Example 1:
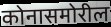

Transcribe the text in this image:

कोनासमोरील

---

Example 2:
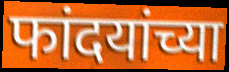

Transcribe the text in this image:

फांदयांच्या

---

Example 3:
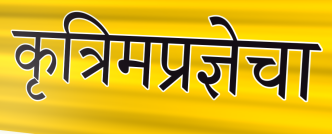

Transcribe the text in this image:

कृत्रिमप्रज्ञेचा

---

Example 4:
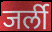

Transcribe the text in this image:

जर्ली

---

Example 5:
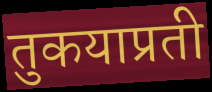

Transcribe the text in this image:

तुकयाप्रती